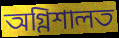
অগ্নিশালত